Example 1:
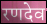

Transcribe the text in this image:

रणदेव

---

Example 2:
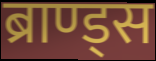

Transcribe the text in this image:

ब्राण्‍ड्स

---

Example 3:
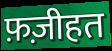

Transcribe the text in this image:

फ़ज़ीहत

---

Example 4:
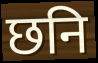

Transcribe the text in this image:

छनि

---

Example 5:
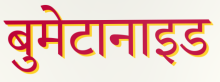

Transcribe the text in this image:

बुमेटानाइड